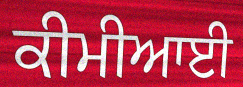
ਕੀਮੀਆਈ